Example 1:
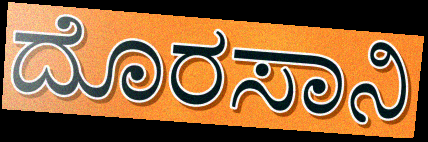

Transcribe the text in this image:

ದೊರಸಾನಿ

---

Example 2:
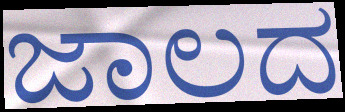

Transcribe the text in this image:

ಜಾಲದ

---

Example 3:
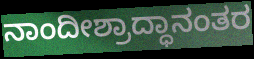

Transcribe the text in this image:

ನಾಂದೀಶ್ರಾದ್ಧಾನಂತರ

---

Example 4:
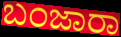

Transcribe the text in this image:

ಬಂಜಾರಾ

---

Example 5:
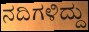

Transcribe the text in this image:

ನದಿಗಳಿದ್ದು